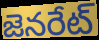
జెనరేట్